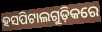
ହସପିଟାଲଗୁଡ଼ିକରେ